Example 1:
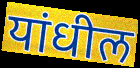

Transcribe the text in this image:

यांधील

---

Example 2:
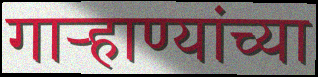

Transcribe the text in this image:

गाऱ्हाण्यांच्या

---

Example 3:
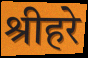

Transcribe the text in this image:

श्रीहरे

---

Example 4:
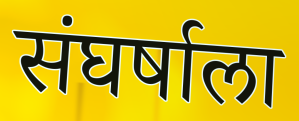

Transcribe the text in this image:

संघर्षाला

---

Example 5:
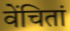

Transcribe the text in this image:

वेंचितां